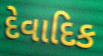
દેવાદિક